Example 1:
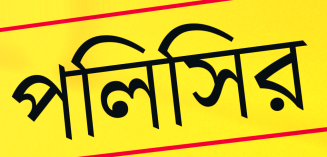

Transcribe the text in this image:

পলিসির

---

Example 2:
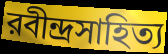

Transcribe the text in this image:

রবীন্দ্রসাহিত্য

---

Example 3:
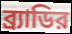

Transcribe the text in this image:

ব্র্যাডির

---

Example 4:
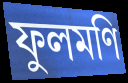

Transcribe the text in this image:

ফুলমণি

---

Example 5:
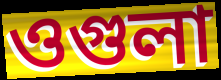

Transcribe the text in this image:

ওগুলা